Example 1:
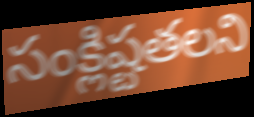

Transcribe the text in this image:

సంక్లిష్టతలని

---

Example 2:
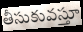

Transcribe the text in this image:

తీసుకువస్తూ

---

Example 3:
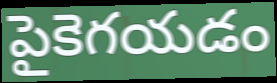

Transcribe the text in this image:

పైకెగయడం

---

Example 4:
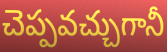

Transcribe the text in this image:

చెప్పవచ్చుగానీ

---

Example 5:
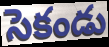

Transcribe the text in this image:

సెకండు